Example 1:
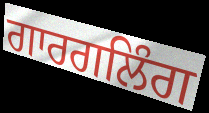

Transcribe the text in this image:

ਗਾਰਗਲਿੰਗ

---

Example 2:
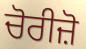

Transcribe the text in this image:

ਚੋਰੀਜ਼ੋ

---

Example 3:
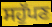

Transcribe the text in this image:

ਸਹੁੱਪਣ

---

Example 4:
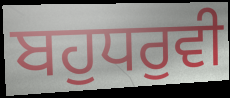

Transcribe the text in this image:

ਬਹੁਧਰੁਵੀ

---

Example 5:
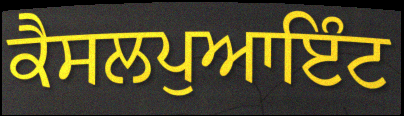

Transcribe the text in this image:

ਕੈਸਲਪੁਆਇੰਟ